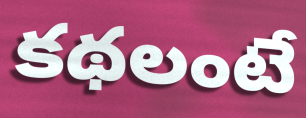
కథలంటే